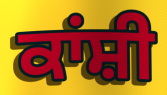
ਕਾਂਸ਼ੀ